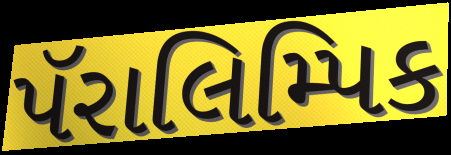
પૅરાલિમ્પિક